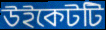
উইকেটটি